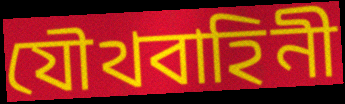
যৌথবাহিনী